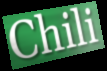
Chili